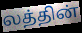
லத்தின்